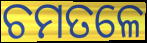
ଚମତଳେ